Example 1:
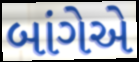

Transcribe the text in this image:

બાંગેએ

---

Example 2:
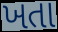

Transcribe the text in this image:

ખતા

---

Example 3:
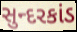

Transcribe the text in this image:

સુન્દરકાંડ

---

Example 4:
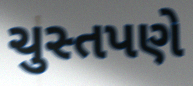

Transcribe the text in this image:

ચુસ્તપણે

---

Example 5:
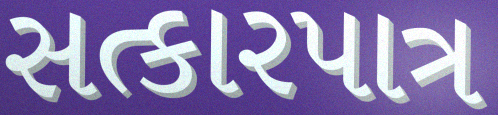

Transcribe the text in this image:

સત્કારપાત્ર